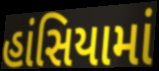
હાંસિયામાં